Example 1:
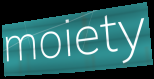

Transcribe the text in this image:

moiety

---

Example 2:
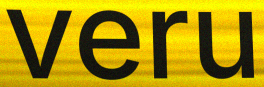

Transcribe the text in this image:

veru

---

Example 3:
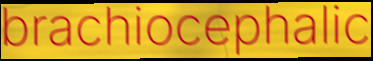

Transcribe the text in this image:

brachiocephalic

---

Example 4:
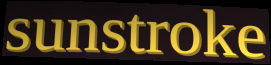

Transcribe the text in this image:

sunstroke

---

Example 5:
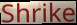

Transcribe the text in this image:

Shrike